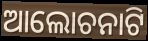
ଆଲୋଚନାଟି